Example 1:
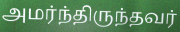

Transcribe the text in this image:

அமர்ந்திருந்தவர்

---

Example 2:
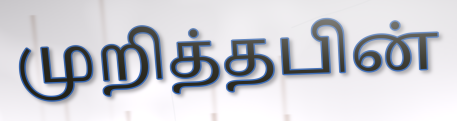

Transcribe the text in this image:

முறித்தபின்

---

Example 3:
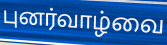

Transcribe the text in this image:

புனர்வாழ்வை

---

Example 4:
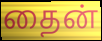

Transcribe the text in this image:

தைன்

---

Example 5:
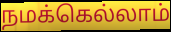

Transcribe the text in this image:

நமக்கெல்லாம்